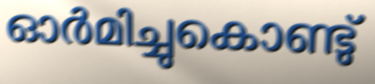
ഓർമിച്ചുകൊണ്ടു്